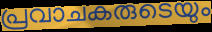
പ്രവാചകരുടെയും